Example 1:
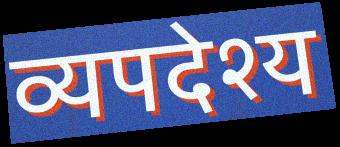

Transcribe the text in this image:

व्यपदेश्य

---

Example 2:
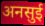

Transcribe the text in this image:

अनसुई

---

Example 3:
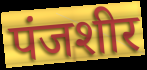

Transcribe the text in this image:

पंजशीर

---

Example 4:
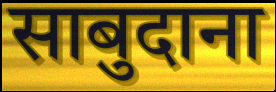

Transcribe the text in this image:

साबुदाना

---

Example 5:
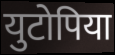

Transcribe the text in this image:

युटोपिया